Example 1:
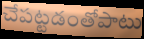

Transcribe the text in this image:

చేపట్టడంతోపాటు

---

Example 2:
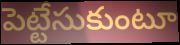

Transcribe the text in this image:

పెట్టేసుకుంటూ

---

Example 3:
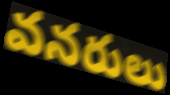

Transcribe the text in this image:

వనరులు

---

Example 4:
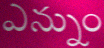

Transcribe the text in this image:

ఎన్నుం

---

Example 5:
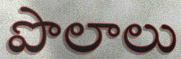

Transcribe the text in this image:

పొలాలు